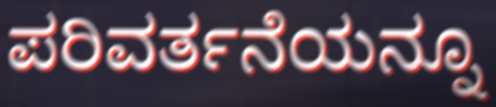
ಪರಿವರ್ತನೆಯನ್ನೂ